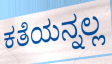
ಕತೆಯನ್ನಲ್ಲ